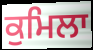
ਕੁਮਿਲਾ